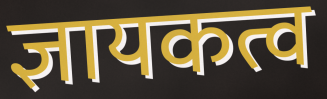
ज्ञायकत्व